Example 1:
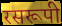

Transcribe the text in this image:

रसरूपी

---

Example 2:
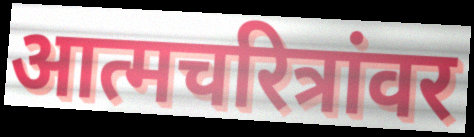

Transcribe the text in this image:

आत्मचरित्रांवर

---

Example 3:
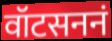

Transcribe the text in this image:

वॉटसननं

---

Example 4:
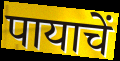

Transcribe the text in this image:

पायाचें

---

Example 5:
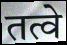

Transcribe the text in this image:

तत्वे